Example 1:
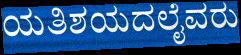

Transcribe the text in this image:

ಯತಿಶಯದಲೈವರು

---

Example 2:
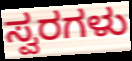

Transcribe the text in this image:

ಸ್ವರಗಳು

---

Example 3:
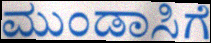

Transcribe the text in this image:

ಮುಂಡಾಸಿಗೆ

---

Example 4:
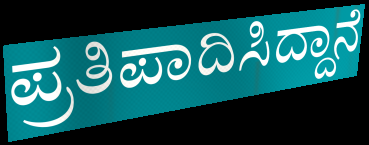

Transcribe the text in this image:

ಪ್ರತಿಪಾದಿಸಿದ್ದಾನೆ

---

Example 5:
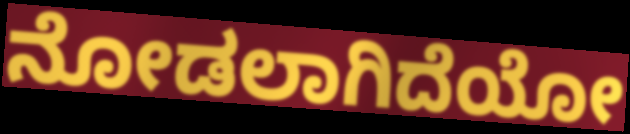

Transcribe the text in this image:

ನೋಡಲಾಗಿದೆಯೋ